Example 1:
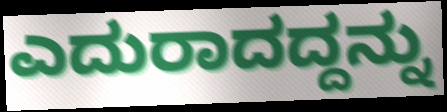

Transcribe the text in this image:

ಎದುರಾದದ್ದನ್ನು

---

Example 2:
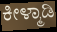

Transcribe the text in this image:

ಕೀಳ್ಮಾಡಿ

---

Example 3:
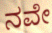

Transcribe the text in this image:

ನವೇ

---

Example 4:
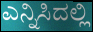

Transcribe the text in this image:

ಎನ್ನಿಸಿದಲ್ಲಿ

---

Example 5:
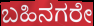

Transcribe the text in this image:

ಬಹಿನಗರೇ